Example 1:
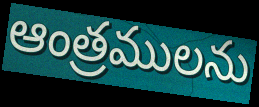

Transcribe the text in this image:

ఆంత్రములను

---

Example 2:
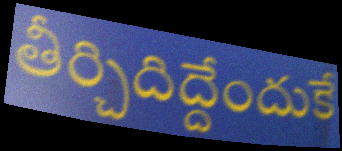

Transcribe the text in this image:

తీర్చిదిద్దేందుకే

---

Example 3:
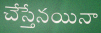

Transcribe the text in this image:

చేస్తేనయినా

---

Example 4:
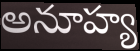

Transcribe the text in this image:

అనూహ్య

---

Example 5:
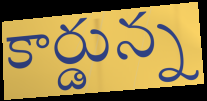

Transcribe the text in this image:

కార్డున్న